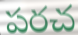
పరచ